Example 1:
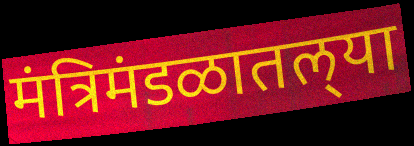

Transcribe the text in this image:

मंत्रिमंडळातल्या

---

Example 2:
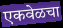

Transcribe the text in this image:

एकवेळचा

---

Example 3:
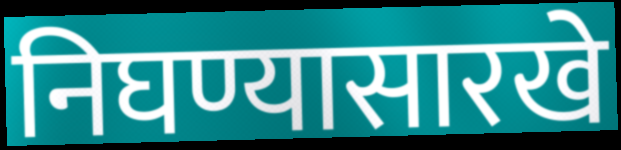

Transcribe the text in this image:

निघण्यासारखे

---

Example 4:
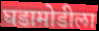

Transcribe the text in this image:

घडामोडीला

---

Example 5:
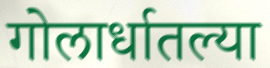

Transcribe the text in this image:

गोलार्धातल्या